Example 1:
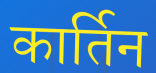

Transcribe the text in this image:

कार्तिन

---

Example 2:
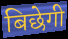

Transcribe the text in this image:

बिछेगी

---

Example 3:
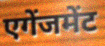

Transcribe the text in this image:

एगेंजमेंट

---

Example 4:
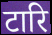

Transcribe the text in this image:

टारि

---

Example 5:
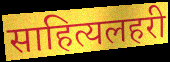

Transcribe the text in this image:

साहित्यलहरी